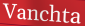
Vanchta